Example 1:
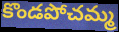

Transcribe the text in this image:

కొండపోచమ్మ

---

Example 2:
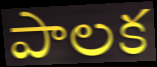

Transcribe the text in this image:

పాలక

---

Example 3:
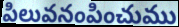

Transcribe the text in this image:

పిలువనంపించుము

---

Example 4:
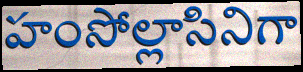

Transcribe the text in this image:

హంసోల్లాసినిగా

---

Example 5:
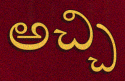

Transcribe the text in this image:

అచ్చి